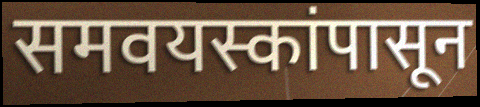
समवयस्कांपासून